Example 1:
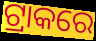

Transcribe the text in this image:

ଟ୍ରାକରେ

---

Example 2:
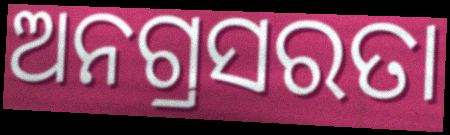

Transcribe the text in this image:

ଅନଗ୍ରସରତା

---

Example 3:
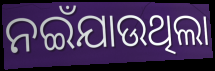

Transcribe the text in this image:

ନଇଁଯାଉଥିଲା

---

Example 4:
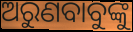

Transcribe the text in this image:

ଅରୁଣବାବୁଙ୍କୁ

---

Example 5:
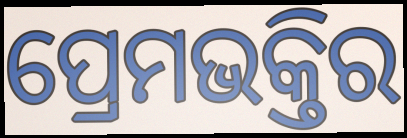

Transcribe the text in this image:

ପ୍ରେମଭକ୍ତିର